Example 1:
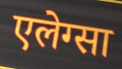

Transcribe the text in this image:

एलेग्सा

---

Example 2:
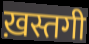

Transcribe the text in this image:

ख़स्तगी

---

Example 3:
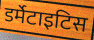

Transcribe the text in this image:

डर्मेटाइटिस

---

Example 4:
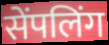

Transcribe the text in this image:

सेंपलिंग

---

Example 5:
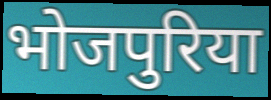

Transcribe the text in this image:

भोजपुरिया